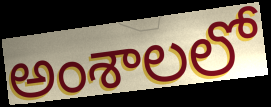
అంశాలలో